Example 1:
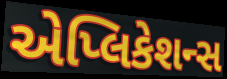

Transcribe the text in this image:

એપ્લિકેશન્સ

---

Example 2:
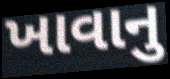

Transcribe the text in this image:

ખાવાનુ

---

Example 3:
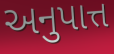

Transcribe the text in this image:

અનુપાત્ત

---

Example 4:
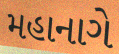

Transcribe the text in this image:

મહાનાગે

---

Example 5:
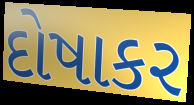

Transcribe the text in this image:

દોષાકર